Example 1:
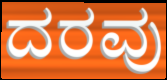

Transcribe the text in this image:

ದರವು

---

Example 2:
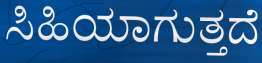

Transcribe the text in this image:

ಸಿಹಿಯಾಗುತ್ತದೆ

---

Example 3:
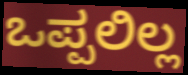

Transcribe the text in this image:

ಒಪ್ಪಲಿಲ್ಲ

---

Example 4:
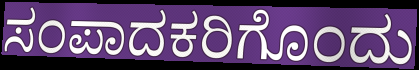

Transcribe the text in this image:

ಸಂಪಾದಕರಿಗೊಂದು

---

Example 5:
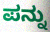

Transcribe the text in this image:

ಪನ್ನು